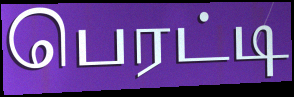
பெரட்டி